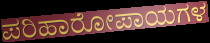
ಪರಿಹಾರೋಪಾಯಗಳ